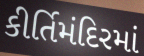
કીર્તિમંદિરમાં